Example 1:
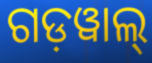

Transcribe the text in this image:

ଗଡ଼ୱାଲ୍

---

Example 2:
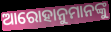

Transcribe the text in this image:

ଆରୋହାନୁମାନଙ୍କୁ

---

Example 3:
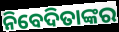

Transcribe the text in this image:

ନିବେଦିତାଙ୍କର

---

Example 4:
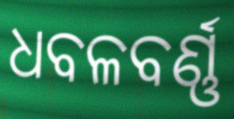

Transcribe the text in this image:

ଧବଳବର୍ଣ୍ଣ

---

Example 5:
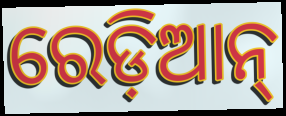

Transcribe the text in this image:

ରେଡ଼ିଆନ୍